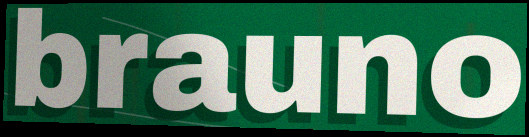
brauno